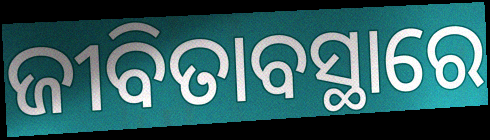
ଜୀବିତାବସ୍ଥାରେ